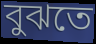
বুঝতে